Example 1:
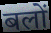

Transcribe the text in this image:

बलों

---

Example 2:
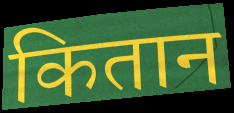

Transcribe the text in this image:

कितान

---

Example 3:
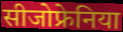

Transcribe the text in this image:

सीजोफ्रेनिया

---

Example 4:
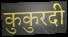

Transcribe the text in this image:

कुकुरदी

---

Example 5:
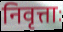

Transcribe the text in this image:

निवृत्ताः